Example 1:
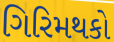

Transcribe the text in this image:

ગિરિમથકો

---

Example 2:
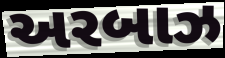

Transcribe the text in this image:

અરબાઝ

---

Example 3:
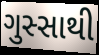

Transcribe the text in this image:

ગુસ્સાથી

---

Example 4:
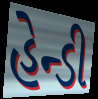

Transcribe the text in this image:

હેન્ડી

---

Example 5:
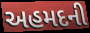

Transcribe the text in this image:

અહમદની